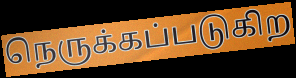
நெருக்கப்படுகிற